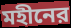
মহীনের